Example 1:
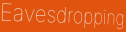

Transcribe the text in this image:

Eavesdropping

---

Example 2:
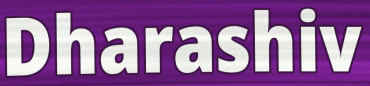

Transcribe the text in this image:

Dharashiv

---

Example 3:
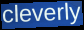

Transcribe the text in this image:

cleverly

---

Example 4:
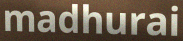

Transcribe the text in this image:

madhurai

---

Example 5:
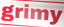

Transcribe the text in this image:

grimy